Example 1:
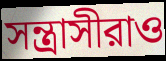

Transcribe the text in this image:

সন্ত্রাসীরাও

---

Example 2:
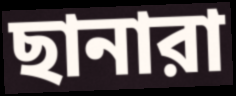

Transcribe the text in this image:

ছানারা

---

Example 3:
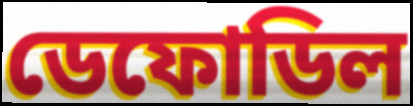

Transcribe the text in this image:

ডেফোডিল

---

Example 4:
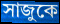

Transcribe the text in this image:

সাজুকে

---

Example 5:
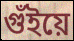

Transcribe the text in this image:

গুঁইয়ে